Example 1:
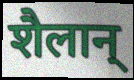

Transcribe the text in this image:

शैलान्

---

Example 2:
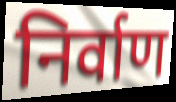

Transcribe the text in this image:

निर्वाण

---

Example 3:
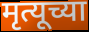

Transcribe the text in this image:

मृत्यूच्या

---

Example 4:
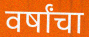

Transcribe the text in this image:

वर्षांचा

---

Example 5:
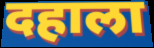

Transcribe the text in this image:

दहाला